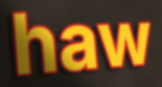
haw